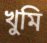
খুমি